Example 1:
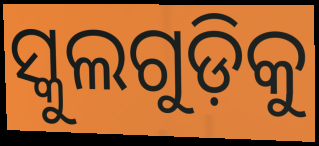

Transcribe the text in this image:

ସ୍କୁଲଗୁଡ଼ିକୁ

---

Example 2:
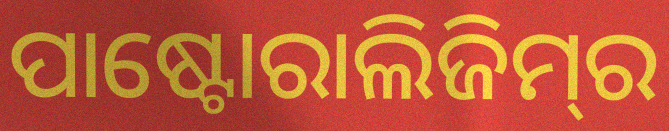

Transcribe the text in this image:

ପାଷ୍ଟୋରାଲିଜିମ୍‌ର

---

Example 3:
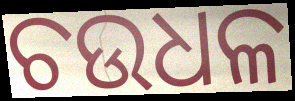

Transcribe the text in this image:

ଚଉଧଳ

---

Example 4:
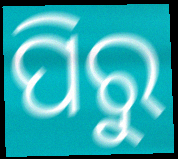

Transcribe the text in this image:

ପିରୁ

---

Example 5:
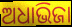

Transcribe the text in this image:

ଅଧାଭିଜା